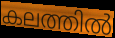
കലത്തിൽ